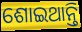
ଶୋଇଥାନ୍ତି